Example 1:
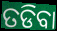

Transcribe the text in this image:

ତଡିବା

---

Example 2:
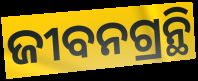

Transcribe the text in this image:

ଜୀବନଗ୍ରନ୍ଥି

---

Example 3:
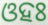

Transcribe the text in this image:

ଓହଃ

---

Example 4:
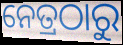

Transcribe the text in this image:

ନେତ୍ରଠାରୁ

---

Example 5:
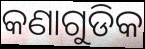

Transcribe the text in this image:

କଣାଗୁଡିକ